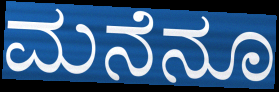
ಮನೆನೂ